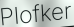
Plofker